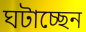
ঘটাচ্ছেন